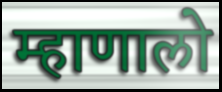
म्हाणालो